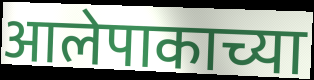
आलेपाकाच्या